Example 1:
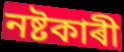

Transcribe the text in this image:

নষ্টকাৰী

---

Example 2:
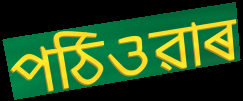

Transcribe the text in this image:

পঠিওৱাৰ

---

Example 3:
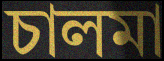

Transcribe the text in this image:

চালমা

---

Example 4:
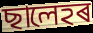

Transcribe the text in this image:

ছালেহৰ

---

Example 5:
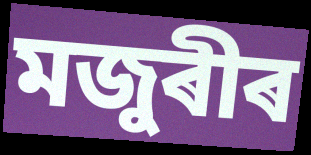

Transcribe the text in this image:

মজুৰীৰ